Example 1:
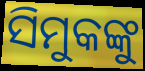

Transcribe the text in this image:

ସିମୁକଙ୍କୁ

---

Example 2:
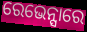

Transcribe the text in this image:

ରେଭେନ୍ସାରେ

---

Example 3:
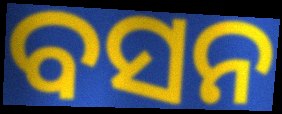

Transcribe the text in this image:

ବସନ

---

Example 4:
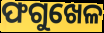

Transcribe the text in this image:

ଫଗୁଖେଳ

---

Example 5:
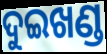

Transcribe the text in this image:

ଦୁଇଖଣ୍ଡ